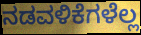
ನಡವಳಿಕೆಗಳೆಲ್ಲ